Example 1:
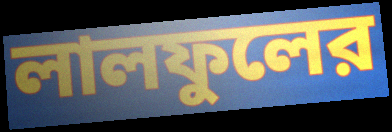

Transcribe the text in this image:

লালফুলের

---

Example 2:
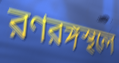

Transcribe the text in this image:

রণরঙ্গস্থলে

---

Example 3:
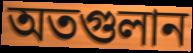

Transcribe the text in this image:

অতগুলান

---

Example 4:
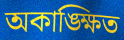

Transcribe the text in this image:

অকাঙ্ক্ষিত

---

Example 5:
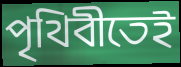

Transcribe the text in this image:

পৃথিবীতেই